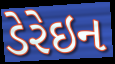
ડેરેઇન